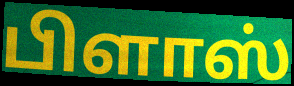
பிளாஸ்